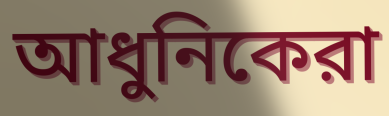
আধুনিকেরা